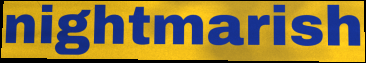
nightmarish